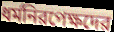
ধর্মনিরপেক্ষদের